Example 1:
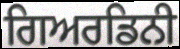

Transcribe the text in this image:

ਗਿਅਰਡਿਨੀ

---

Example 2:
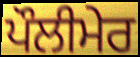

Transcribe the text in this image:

ਪੌਲੀਮੇਰ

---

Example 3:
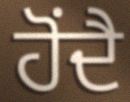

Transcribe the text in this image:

ਹੋਂਦੈ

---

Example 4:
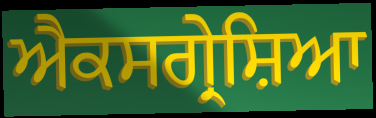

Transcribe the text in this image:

ਐਕਸਗ੍ਰੇਸ਼ਿਆ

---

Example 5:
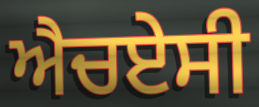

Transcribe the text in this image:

ਐਚਏਸੀ